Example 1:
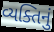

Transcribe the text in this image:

વ્યક્તિનું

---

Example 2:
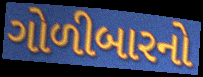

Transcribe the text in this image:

ગોળીબારનો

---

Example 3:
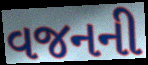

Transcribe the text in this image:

વજનની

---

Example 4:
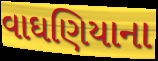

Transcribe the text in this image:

વાઘણિયાના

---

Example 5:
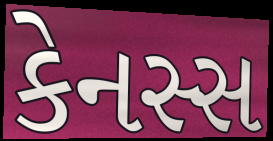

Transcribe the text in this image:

કેનસ્સ